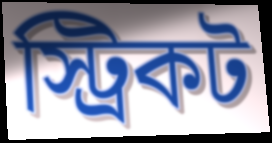
স্ট্রিকট